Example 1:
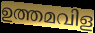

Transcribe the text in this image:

ഉത്തമവിള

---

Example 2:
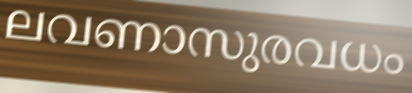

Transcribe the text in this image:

ലവണാസുരവധം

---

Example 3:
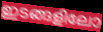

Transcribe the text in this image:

ഇടങ്ങളിലോ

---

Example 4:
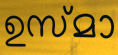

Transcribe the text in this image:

ഉസ്മാ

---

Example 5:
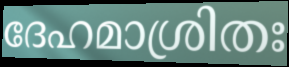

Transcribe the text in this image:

ദേഹമാശ്രിതഃ